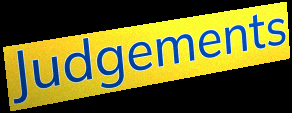
Judgements